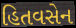
હિતવસેન